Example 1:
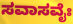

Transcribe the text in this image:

ಸವಾಸವೈಃ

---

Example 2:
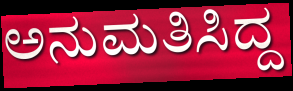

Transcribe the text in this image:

ಅನುಮತಿಸಿದ್ದ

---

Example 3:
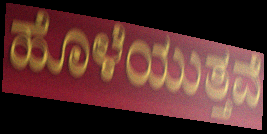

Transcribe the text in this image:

ಹೊಳೆಯುತ್ತವೆ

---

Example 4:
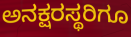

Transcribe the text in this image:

ಅನಕ್ಷರಸ್ಥರಿಗೂ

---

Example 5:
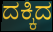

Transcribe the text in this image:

ದಕ್ಕಿದ